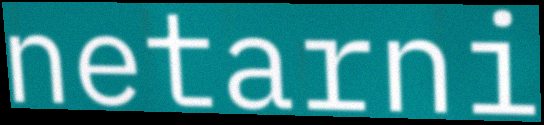
netarni